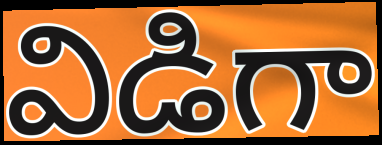
విడిగా